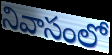
నివాసంలో